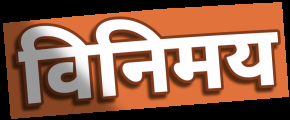
विनिमय